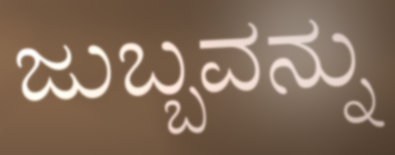
ಜುಬ್ಬವನ್ನು